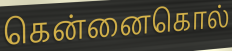
கென்னைகொல்